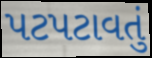
પટપટાવતું